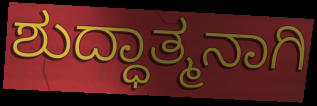
ಶುದ್ಧಾತ್ಮನಾಗಿ